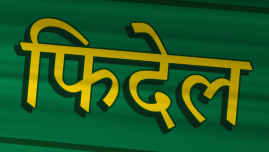
फिदेल